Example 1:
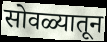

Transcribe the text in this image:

सोवळ्यातून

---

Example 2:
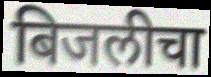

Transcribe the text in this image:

बिजलीचा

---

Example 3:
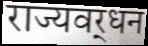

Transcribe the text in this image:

राज्यवर्धन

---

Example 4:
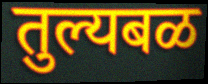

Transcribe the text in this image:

तुल्यबळ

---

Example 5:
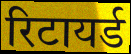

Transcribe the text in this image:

रिटायर्ड